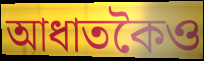
আধাতকৈও